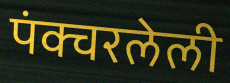
पंक्चरलेली